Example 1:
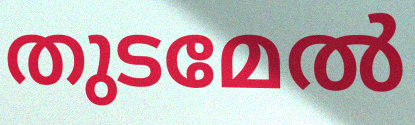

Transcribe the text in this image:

തുടമേൽ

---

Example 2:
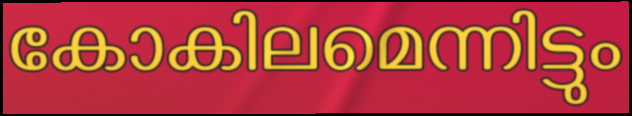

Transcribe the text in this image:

കോകിലമെന്നിട്ടും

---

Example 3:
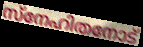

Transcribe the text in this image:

സ്നേഹിതനോട്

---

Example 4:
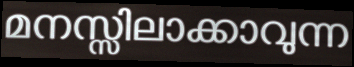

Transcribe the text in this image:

മനസ്സിലാക്കാവുന്ന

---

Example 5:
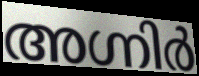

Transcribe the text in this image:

അഗ്നിർ